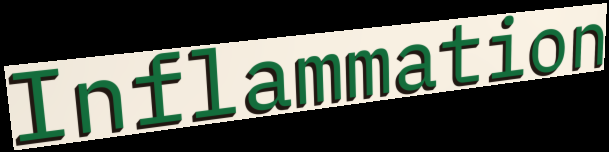
Inflammation